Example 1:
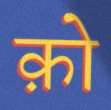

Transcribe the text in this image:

क़ो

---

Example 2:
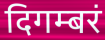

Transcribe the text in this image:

दिगम्बरं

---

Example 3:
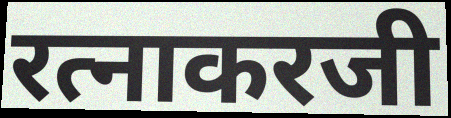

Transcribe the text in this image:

रत्नाकरजी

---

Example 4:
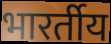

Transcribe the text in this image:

भारर्तीय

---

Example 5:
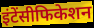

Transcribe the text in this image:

इंटेंसीफिकेशन